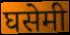
घसेमी